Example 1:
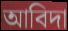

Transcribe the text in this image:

আবিদা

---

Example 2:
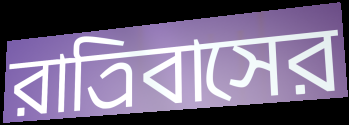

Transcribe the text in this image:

রাত্রিবাসের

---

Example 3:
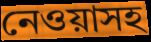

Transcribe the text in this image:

নেওয়াসহ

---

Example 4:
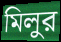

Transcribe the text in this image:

মিলুর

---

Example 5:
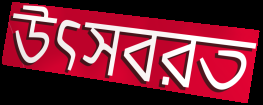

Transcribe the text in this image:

উৎসবরত